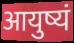
आयुष्यं